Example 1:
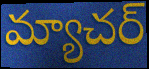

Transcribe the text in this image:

మ్యాచర్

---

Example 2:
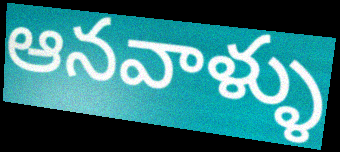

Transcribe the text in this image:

ఆనవాళ్ళు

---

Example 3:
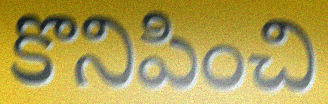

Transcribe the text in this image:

కొనిపించి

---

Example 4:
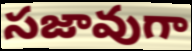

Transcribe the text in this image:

సజావుగా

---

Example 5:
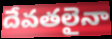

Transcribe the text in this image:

దేవతలైనా